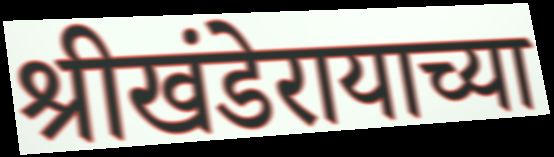
श्रीखंडेरायाच्या